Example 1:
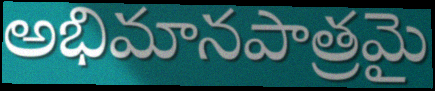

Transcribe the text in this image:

అభిమానపాత్రమై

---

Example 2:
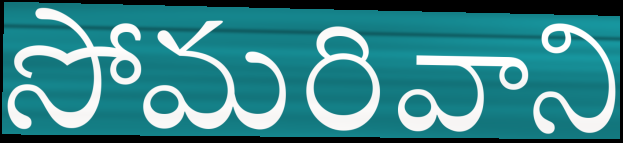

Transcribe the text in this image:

సోమరివాని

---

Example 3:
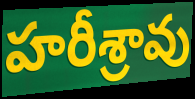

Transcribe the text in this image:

హరీశ్రావు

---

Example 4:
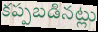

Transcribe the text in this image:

కప్పబడినట్లు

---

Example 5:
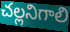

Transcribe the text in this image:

చల్లనిగాలి